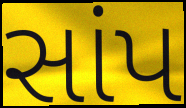
સાંપ